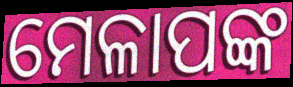
ମେଳାପଙ୍କ